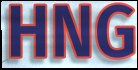
HNG